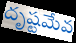
దృష్టమేవ